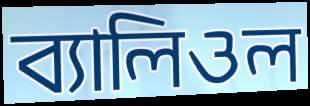
ব্যালিওল